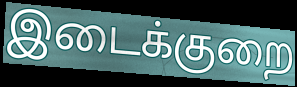
இடைக்குறை